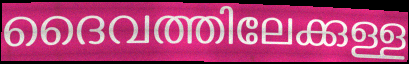
ദൈവത്തിലേക്കുള്ള